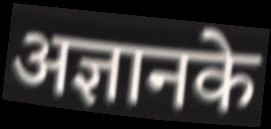
अज्ञानके